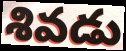
శివడు